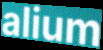
alium